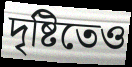
দৃষ্টিতেও